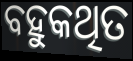
ବହୁକଥିତ